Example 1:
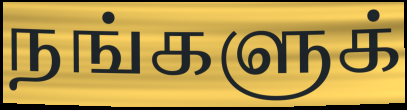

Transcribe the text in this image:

நங்களுக்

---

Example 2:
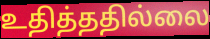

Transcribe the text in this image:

உதித்ததில்லை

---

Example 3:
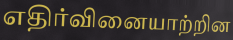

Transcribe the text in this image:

எதிர்வினையாற்றின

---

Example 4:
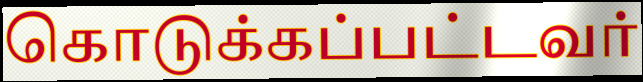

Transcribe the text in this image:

கொடுக்கப்பட்டவர்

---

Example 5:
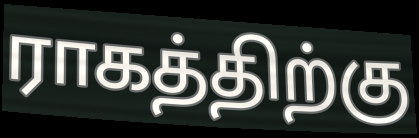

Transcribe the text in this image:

ராகத்திற்கு